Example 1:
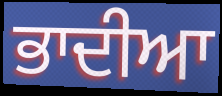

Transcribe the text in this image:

ਭਾਦੀਆ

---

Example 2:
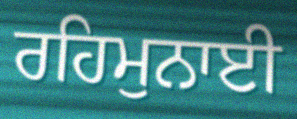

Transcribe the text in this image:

ਰਹਿਮੁਨਾਈ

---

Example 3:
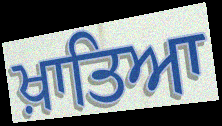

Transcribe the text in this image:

ਖ਼ਾਤਿਆ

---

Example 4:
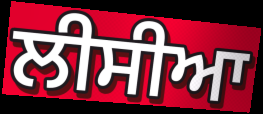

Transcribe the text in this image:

ਲੀਸੀਆ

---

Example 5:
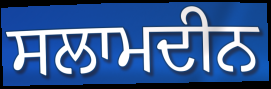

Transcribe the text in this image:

ਸਲਾਮਦੀਨ